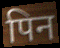
पिन